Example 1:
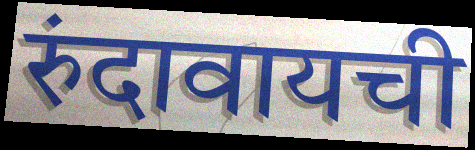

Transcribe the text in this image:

रुंदावायची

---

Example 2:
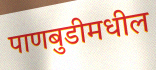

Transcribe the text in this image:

पाणबुडीमधील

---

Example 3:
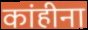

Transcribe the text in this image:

कांहीना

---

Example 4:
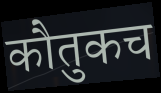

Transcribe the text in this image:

कौतुकच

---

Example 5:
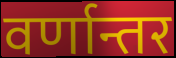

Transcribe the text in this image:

वर्णान्तर